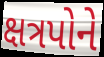
ક્ષત્રપોને